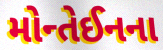
મોન્તેઈનના